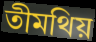
তীমথিয়